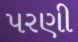
પરણી